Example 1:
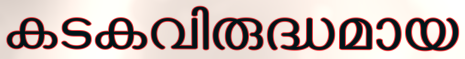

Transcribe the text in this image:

കടകവിരുദ്ധമായ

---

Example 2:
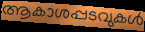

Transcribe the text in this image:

ആകാശപ്പടവുകൾ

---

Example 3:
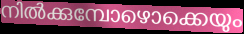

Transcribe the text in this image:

നിൽക്കുമ്പോഴൊക്കെയും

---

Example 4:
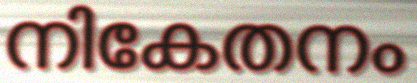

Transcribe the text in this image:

നികേതനം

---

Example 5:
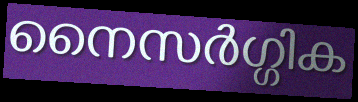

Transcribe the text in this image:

നൈസർഗ്ഗിക